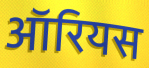
ऑरियस